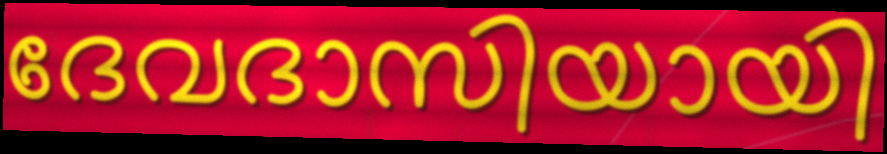
ദേവദാസിയായി